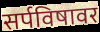
सर्पविषावर